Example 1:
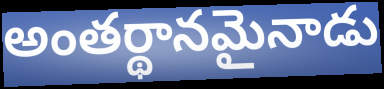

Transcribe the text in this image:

అంతర్థానమైనాడు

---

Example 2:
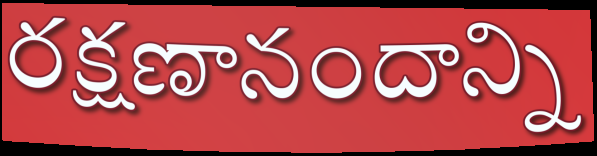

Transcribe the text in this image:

రక్షణానందాన్ని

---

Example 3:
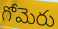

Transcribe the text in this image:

గోమెరు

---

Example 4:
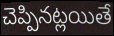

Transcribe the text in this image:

చెప్పినట్లయితే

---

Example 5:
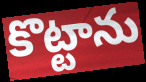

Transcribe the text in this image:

కొట్టాను